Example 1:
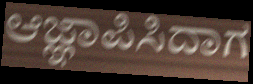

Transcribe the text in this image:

ಆಜ್ಞಾಪಿಸಿದಾಗ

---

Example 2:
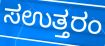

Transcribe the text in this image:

ಸಉತ್ತರಂ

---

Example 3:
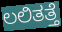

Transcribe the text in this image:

ಲಲಿತತ್ತೆ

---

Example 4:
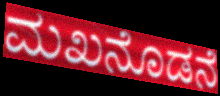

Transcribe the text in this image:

ಮಖನೊಡನೆ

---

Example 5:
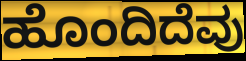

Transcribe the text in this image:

ಹೊಂದಿದೆವು